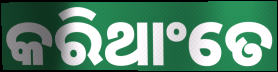
କରିଥାଂତେ